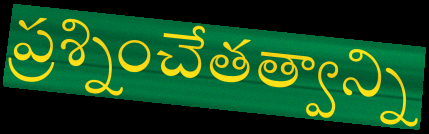
ప్రశ్నించేతత్వాన్ని